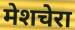
मेशचेरा